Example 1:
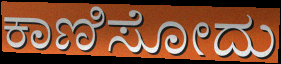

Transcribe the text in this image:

ಕಾಣಿಸೋದು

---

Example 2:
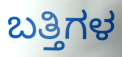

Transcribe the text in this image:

ಬತ್ತಿಗಳ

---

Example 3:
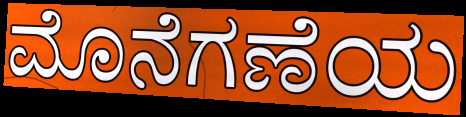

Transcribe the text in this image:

ಮೊನೆಗಣೆಯ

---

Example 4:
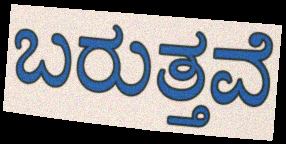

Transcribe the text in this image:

ಬರುತ್ತವೆ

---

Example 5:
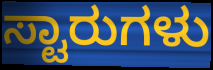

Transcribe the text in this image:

ಸ್ಟಾರುಗಳು